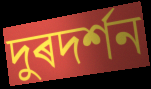
দুৰদৰ্শন